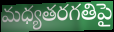
మధ్యతరగతిపై